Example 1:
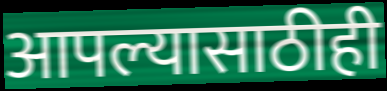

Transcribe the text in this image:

आपल्यासाठीही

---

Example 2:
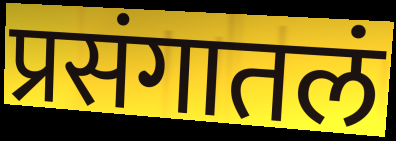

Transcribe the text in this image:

प्रसंगातलं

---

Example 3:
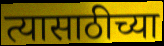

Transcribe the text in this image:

त्यासाठीच्या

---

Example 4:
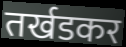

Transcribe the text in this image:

तर्खडकर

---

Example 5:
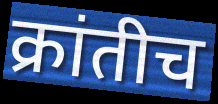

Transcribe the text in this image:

क्रांतीच